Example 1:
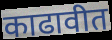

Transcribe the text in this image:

काढावीत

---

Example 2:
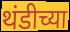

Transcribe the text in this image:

थंडीच्या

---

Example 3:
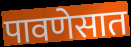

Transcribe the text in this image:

पावणेसात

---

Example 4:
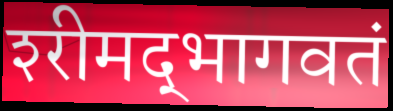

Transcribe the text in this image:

श्रीमद्‌भागवतं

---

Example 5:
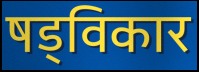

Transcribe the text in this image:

षड्‌विकार